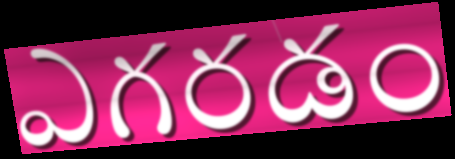
ఎగరడం